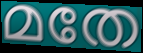
മതേ